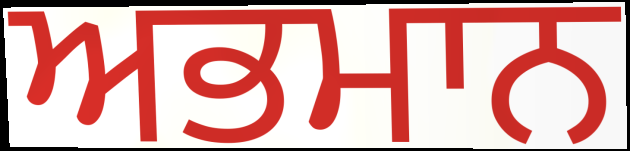
ਅਭਮਾਨ